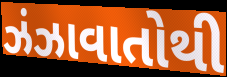
ઝંઝાવાતોથી